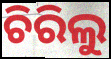
ଚିରିଲୁ